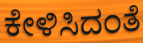
ಕೇಳಿಸಿದಂತೆ